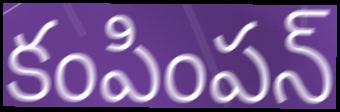
కంపింపన్